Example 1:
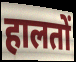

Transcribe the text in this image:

हालतों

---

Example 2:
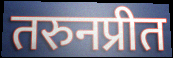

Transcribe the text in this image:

तरुनप्रीत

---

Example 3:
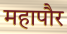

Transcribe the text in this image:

महापौर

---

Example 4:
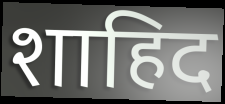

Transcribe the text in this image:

शाहिद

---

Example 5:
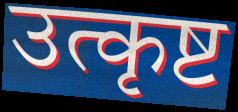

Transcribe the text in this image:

उत्कृष्ट